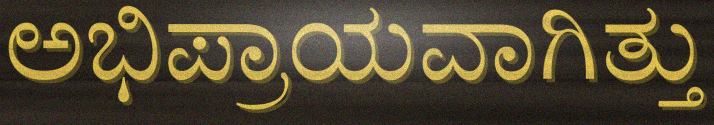
ಅಭಿಪ್ರಾಯವಾಗಿತ್ತು